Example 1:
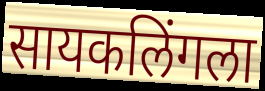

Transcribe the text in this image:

सायकलिंगला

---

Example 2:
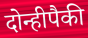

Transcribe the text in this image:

दोन्हीपैकी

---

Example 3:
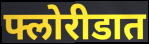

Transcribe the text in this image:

फ्लोरीडात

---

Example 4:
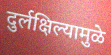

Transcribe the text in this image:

दुर्लक्षिल्यामुळे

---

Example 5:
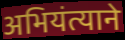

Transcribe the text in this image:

अभियंत्याने